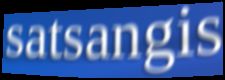
satsangis